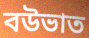
বউভাত